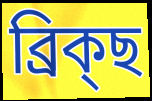
ব্ৰিক্ছ